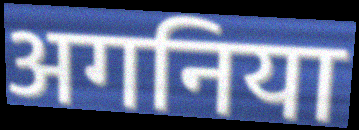
अगनिया